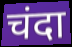
चंदा